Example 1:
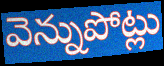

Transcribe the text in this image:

వెన్నుపోట్లు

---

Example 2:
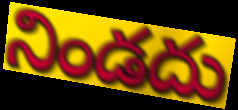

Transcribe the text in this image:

నిండదు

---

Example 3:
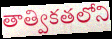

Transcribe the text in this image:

తాత్వికతలోని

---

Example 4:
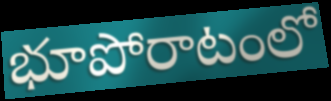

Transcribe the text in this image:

భూపోరాటంలో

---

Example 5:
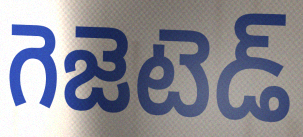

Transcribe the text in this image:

గెజెటెడ్